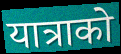
यात्राको